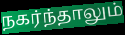
நகர்ந்தாலும்